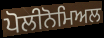
ਪੋਲੀਨੋਮਿਅਲ